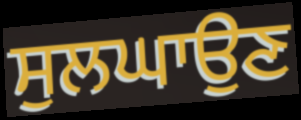
ਸੁਲਘਾਉਣ